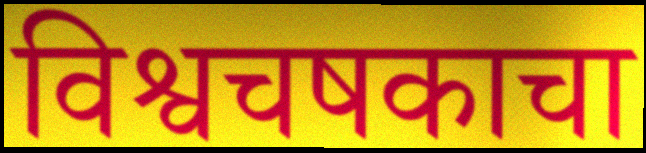
विश्वचषकाचा